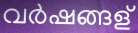
വർഷങ്ങള്